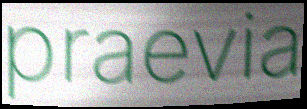
praevia